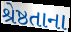
શ્રેષ્ઠતાના